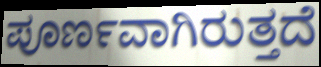
ಪೂರ್ಣವಾಗಿರುತ್ತದೆ